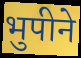
भुपीने